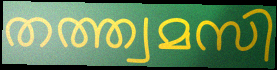
തത്ത്വമസി